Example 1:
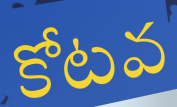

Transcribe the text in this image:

కోటవ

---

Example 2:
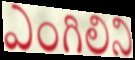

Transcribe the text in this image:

ఎంగిలిని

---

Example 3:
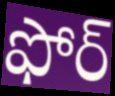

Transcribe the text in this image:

ఫోర్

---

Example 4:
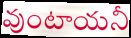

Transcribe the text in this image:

వుంటాయనీ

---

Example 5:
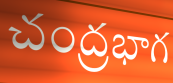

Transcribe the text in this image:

చంద్రభాగ